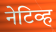
नेटिव्ह